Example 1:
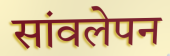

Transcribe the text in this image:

सांवलेपन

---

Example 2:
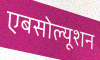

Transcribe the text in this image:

एबसोल्यूशन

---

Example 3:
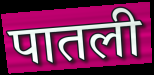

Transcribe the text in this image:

पातली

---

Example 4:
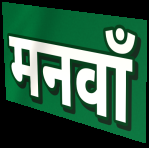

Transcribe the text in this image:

मनवाँ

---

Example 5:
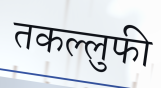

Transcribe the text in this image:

तकल्लुफी